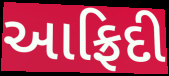
આફ્રિદી